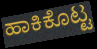
ಹಾಕಿಕೊಟ್ಟ